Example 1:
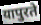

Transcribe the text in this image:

यापुरते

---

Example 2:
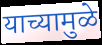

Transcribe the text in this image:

याच्यामुळे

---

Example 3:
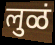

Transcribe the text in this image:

लुळं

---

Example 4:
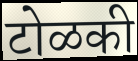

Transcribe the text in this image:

टोळकी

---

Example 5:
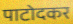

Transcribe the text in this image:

पाटोदकर